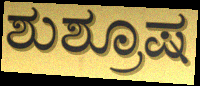
ಶುಶ್ರೂಷ